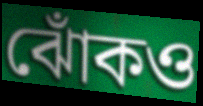
ঝোঁকও